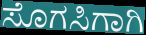
ಸೊಗಸಿಗಾಗಿ